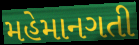
મહેમાનગતી